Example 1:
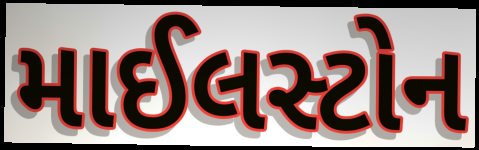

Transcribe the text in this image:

માઈલસ્ટોન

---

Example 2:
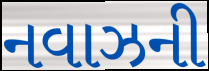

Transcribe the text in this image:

નવાઝની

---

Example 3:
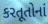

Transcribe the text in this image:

કરતૂતોનાં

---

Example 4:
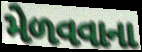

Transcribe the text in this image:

મેળવવાના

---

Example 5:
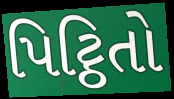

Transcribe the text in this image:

પિટ્ઠિતો